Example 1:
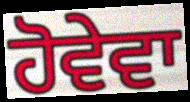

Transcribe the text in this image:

ਹੋਵੇਵਾ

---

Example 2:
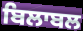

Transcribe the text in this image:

ਬਿਲਾਬਲ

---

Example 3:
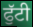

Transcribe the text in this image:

ਫੁੱਟੀ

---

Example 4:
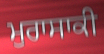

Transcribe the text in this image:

ਮੁਰਾਸਾਕੀ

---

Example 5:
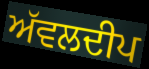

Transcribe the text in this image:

ਅੱਵਲਦੀਪ